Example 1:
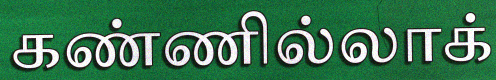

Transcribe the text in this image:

கண்ணில்லாக்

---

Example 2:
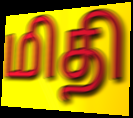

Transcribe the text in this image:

மிதி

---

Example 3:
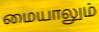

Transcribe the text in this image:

மையாலும்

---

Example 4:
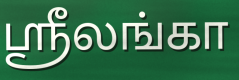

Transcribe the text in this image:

ஶ்ரீலங்கா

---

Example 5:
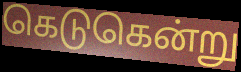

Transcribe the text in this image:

கெடுகென்று